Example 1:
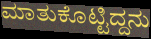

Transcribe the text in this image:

ಮಾತುಕೊಟ್ಟಿದ್ದನು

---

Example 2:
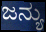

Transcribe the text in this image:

ಜನ್ಯು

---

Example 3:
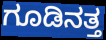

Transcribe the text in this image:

ಗೂಡಿನತ್ತ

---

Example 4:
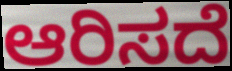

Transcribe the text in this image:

ಆರಿಸದೆ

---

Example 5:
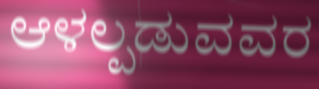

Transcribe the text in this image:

ಆಳಲ್ಪಡುವವರ